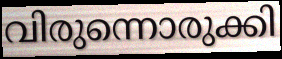
വിരുന്നൊരുക്കി